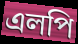
এলপি